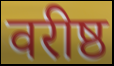
वरीष्ठ